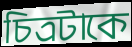
চিত্রটাকে